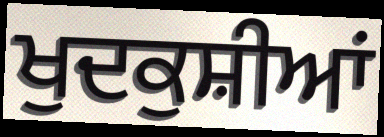
ਖੁਦਕੁਸ਼ੀਆਂ